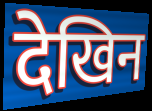
देखिन